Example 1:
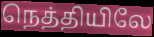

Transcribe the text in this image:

நெத்தியிலே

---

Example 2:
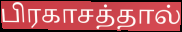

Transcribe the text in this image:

பிரகாசத்தால்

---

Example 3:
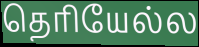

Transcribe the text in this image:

தெரியேல்ல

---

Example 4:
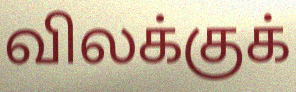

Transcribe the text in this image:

விலக்குக்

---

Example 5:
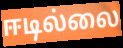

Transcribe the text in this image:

ஈடில்லை